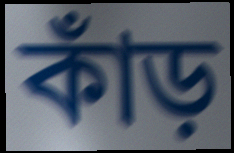
কাঁড়